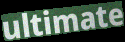
ultimate